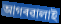
আগৰৱালাই